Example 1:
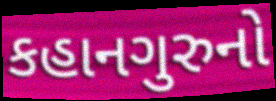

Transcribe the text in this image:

કહાનગુરુનો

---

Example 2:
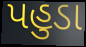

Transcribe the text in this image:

પહુડા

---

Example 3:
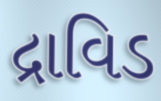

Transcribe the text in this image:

દ્રાવિડ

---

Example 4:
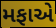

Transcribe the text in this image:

મફાએ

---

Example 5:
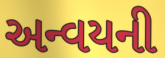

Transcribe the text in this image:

અન્વયની